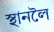
স্থানলৈ